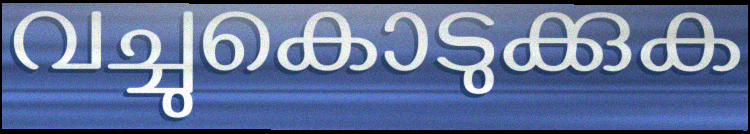
വച്ചുകൊടുക്കുക